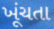
ખૂંચતા